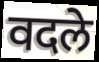
वदले